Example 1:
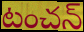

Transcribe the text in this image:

టంచన్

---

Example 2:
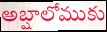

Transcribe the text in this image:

అబ్షాలోముకు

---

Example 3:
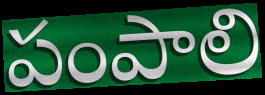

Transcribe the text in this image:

పంపాలి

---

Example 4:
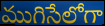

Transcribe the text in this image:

ముగిసేలోగా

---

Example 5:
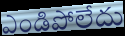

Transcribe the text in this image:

ఎండిపోలేదు